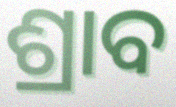
ଶ୍ରାବ